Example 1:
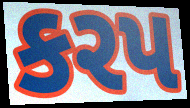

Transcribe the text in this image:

કરપ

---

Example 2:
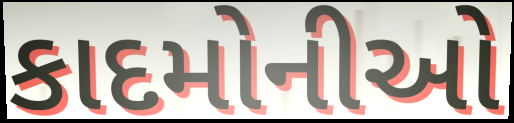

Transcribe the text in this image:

કાદમોનીઓ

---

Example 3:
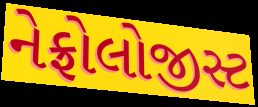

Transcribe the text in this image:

નેફ્રોલોજીસ્ટ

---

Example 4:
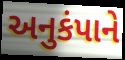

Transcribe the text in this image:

અનુકંપાને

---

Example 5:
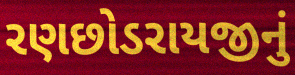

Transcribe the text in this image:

રણછોડરાયજીનું